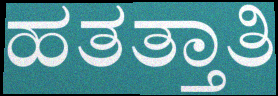
ಹತತ್ತಾತಿ